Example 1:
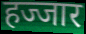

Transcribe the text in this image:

हज्जार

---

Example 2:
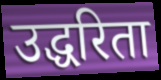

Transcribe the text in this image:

उद्धरिता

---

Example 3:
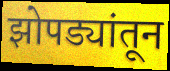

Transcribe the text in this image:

झोपड्यांतून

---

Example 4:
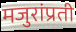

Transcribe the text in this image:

मजुरांप्रती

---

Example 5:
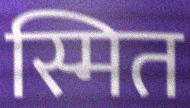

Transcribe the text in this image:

स्मित